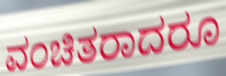
ವಂಚಿತರಾದರೂ